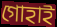
গোহাই